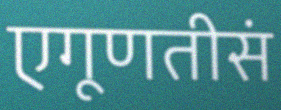
एगूणतीसं